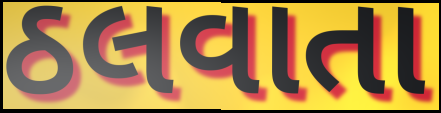
ઠલવાતા